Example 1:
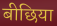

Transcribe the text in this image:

बीछिया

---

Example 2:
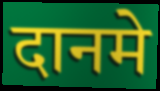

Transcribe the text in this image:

दानमे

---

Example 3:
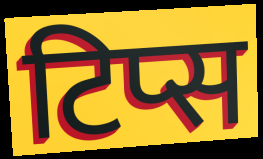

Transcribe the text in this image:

टिप्‍स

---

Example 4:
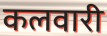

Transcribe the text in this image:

कलवारी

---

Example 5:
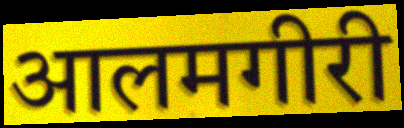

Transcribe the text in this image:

आलमगीरी